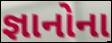
જ્ઞાનોના